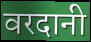
वरदानी